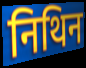
निथिन